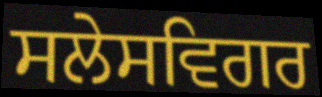
ਸਲੇਸਵਿਗਰ